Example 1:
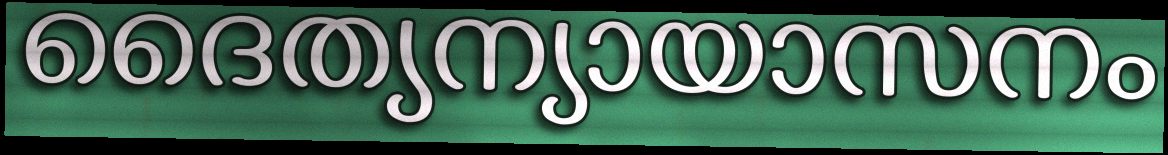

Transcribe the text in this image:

ദൈത്യന്യായാസനം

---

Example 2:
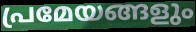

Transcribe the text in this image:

പ്രമേയങ്ങളും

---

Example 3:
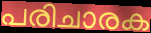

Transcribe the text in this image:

പരിചാരക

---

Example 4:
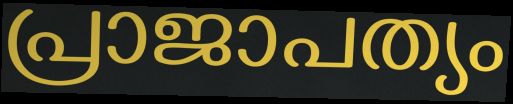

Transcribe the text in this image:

പ്രാജാപത്യം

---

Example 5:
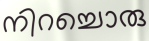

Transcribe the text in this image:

നിറച്ചൊരു